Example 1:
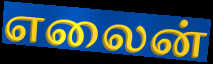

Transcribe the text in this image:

எலைன்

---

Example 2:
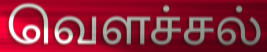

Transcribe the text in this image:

வெளச்சல்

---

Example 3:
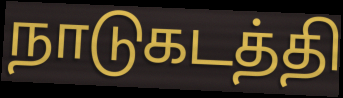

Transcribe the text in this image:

நாடுகடத்தி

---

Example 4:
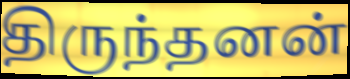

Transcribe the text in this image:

திருந்தனன்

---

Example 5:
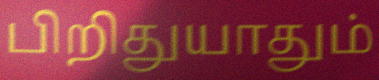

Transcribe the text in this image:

பிறிதுயாதும்